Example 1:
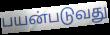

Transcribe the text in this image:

பயன்படுவது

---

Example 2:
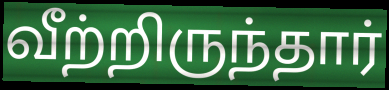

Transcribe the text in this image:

வீற்றிருந்தார்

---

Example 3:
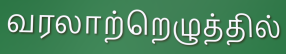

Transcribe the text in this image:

வரலாற்றெழுத்தில்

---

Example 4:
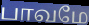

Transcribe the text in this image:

பாவமே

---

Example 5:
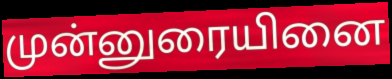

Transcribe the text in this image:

முன்னுரையினை